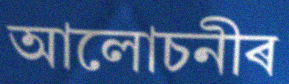
আলোচনীৰ